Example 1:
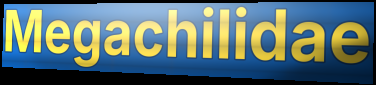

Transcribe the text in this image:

Megachilidae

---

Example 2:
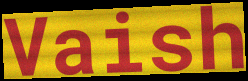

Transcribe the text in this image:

Vaish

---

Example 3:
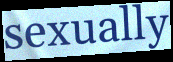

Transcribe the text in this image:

sexually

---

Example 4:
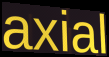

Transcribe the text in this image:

axial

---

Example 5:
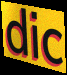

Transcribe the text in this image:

dic